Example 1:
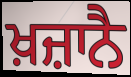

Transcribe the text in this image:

ਖ਼ਜ਼ਾਨੈ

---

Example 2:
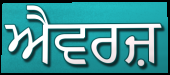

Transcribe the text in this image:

ਐਵਰਜ਼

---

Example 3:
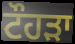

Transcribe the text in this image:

ਟੌਹਡ਼ਾ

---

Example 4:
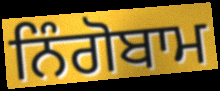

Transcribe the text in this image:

ਨਿੰਗੋਬਾਮ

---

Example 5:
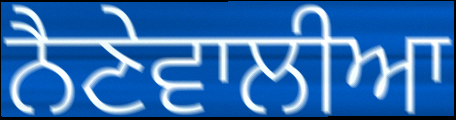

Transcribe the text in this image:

ਨੈਣੇਵਾਲੀਆ